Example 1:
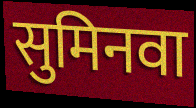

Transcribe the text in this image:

सुमिनवा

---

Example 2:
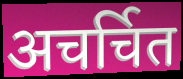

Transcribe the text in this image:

अचर्चित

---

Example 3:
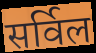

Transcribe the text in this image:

सर्विल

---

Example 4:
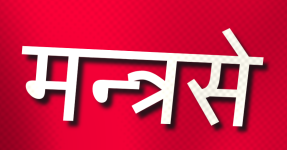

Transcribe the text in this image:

मन्त्रसे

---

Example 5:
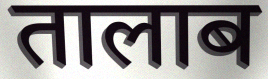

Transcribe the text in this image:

तालाब